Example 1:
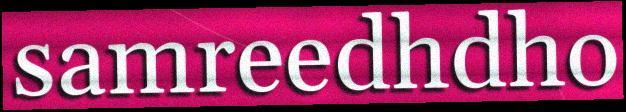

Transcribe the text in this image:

samreedhdho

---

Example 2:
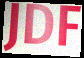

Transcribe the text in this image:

JDF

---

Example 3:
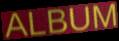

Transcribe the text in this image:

ALBUM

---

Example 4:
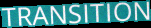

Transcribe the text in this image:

TRANSITION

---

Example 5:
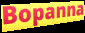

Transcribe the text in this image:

Bopanna